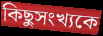
কিছুসংখ্যকে